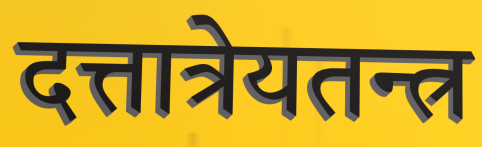
दत्तात्रेयतन्त्र